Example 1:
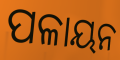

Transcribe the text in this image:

ପଳାୟନ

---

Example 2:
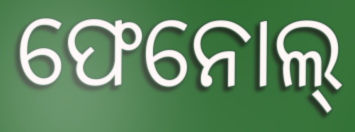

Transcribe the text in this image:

ଫେନୋଲ୍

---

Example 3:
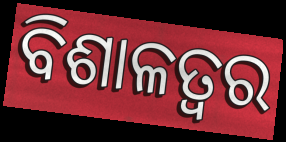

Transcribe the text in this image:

ବିଶାଳତ୍ୱର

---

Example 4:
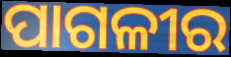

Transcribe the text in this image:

ପାଗଳୀର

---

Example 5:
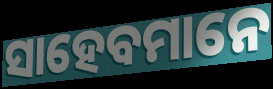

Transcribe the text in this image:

ସାହେବମାନେ